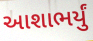
આશાભર્યું